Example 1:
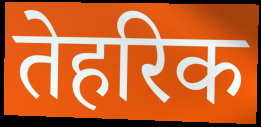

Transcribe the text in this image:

तेहरिक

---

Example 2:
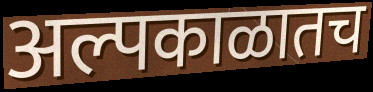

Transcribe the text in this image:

अल्पकाळातच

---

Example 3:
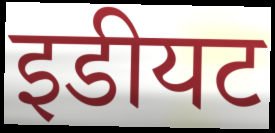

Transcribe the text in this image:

इडीयट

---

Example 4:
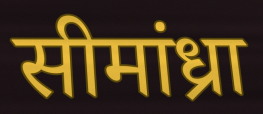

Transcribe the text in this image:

सीमांध्रा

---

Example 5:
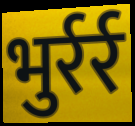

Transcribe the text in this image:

भुर्रर्र